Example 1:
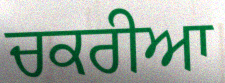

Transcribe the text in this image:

ਚਕਰੀਆ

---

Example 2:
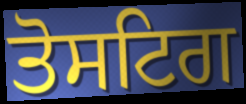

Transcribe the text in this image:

ਤੋਸਟਿਗ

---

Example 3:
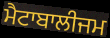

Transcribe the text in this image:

ਮੈਟਾਬਾਲੀਜਮ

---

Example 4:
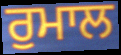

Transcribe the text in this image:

ਰੁਮਾਲ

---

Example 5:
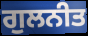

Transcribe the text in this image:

ਗੁਲਨੀਤ